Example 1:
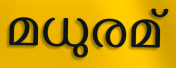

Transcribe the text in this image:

മധുരമ്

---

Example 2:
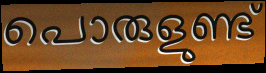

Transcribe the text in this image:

പൊരുളുണ്ട്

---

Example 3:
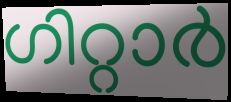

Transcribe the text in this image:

ഗിറ്റാർ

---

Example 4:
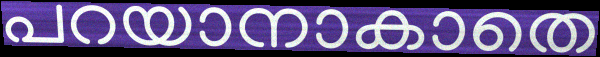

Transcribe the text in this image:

പറയാനാകാതെ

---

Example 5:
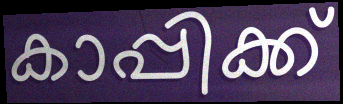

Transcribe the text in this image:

കാപ്പിക്ക്